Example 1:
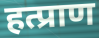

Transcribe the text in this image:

हत्प्राण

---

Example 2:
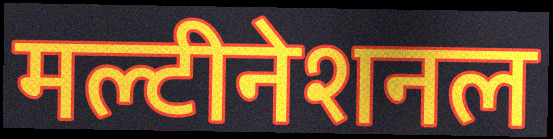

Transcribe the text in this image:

मल्टीनेशनल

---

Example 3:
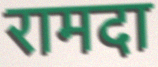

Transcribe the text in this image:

रामदा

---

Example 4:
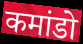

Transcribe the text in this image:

कमांडो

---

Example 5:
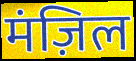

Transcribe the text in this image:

मंज़िल